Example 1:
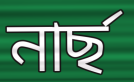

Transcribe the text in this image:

নাৰ্ছ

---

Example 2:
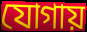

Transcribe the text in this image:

যোগায়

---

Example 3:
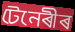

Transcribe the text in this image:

টেনেৰীৰ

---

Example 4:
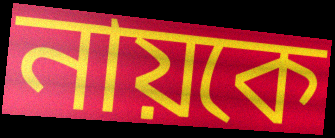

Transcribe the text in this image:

নায়কে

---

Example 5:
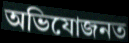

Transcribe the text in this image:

অভিযোজনত